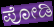
ಪೋಡಿ